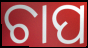
ଚାପ